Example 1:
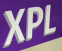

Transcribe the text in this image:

XPL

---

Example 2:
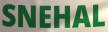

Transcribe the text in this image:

SNEHAL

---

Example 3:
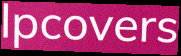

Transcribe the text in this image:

lpcovers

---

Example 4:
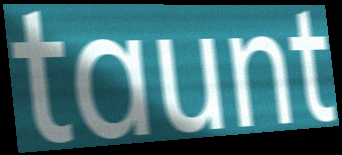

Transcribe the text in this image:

taunt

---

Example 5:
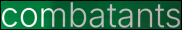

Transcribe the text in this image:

combatants